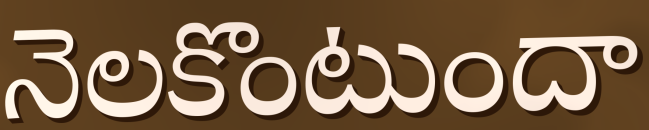
నెలకొంటుందా